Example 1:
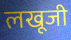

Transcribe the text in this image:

लखूजी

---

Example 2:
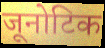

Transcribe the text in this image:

जूनोटिक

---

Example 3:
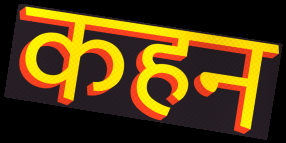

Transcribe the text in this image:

कहन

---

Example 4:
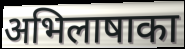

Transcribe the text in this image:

अभिलाषाका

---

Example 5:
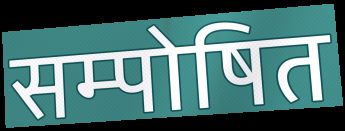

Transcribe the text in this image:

सम्पोषित